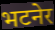
भटनेर